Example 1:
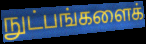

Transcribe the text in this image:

நுட்பங்களைக்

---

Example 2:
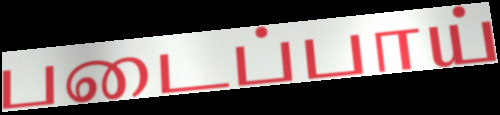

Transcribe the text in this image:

படைப்பாய்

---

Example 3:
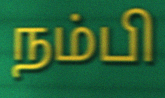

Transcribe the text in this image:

நம்பி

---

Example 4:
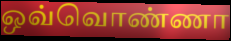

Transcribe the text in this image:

ஒவ்வொண்ணா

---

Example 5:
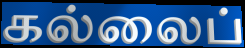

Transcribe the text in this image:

கல்லைப்